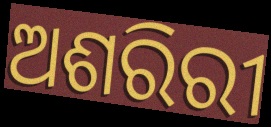
ଅଶରିରୀ